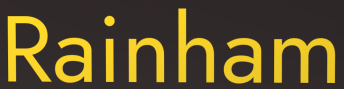
Rainham